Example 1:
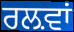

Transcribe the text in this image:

ਰਲ਼ਵਾਂ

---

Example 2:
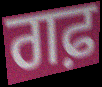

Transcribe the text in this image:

ਗਫ਼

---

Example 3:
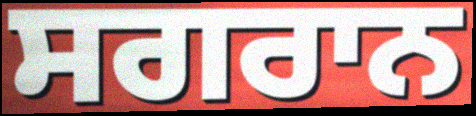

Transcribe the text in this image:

ਸਗਰਾਨ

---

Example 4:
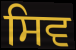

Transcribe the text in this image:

ਸਿਵ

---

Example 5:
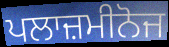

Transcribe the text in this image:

ਪਲਾਜ਼ਮੀਨੋਜ